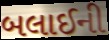
બલાઈની